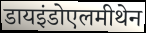
डायइंडोएलमीथेन